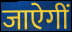
जाऐगीं